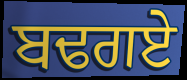
ਬਢਗਏ